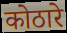
कोठारे